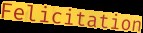
Felicitation